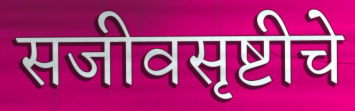
सजीवसृष्टीचे